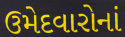
ઉમેદવારોનાં